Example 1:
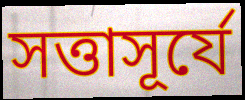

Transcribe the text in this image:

সত্তাসূর্যে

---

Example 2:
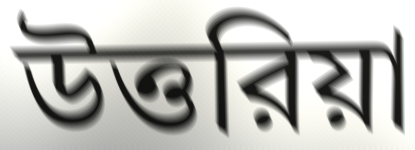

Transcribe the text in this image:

উত্তরিয়া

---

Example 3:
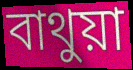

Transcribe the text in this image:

বাথুয়া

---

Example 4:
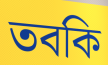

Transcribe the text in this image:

তবকি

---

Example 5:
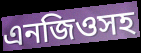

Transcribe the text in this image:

এনজিওসহ